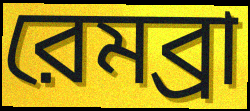
রেমব্রা